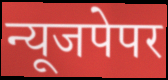
न्यूजपेपर